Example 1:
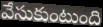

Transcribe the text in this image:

వేసుకుంటుంది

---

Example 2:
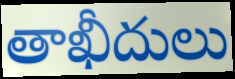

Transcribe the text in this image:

తాఖీదులు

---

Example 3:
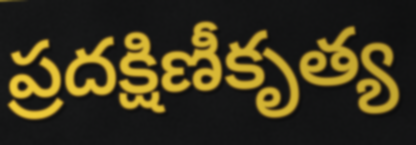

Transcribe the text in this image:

ప్రదక్షిణీకృత్య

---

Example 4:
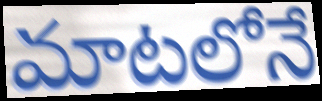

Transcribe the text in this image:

మాటలోనే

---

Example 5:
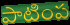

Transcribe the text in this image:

పాటింప